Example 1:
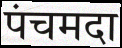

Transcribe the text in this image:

पंचमदा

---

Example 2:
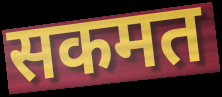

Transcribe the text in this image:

सकमत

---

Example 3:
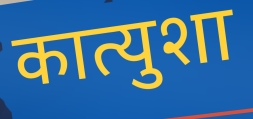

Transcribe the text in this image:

कात्युशा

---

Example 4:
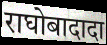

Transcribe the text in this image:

राघोबादादा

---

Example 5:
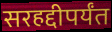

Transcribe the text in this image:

सरहद्दीपर्यंत